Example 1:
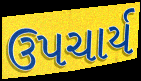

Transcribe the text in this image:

ઉપચાર્ય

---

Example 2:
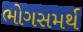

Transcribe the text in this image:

ભોગસમર્થ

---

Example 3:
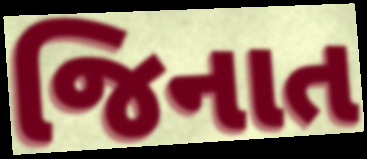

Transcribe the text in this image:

જિનાત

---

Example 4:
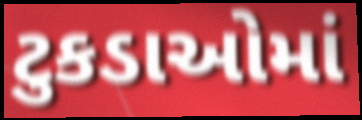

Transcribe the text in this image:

ટુકડાઓમાં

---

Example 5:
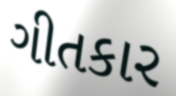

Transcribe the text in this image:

ગીતકાર